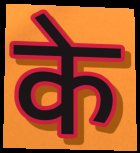
के